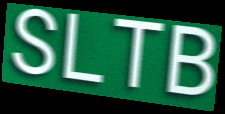
SLTB